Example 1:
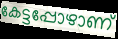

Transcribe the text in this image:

കേട്ടപ്പോഴാണ്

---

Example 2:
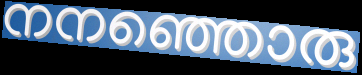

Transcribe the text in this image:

നനഞ്ഞൊരു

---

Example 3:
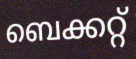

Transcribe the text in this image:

ബെക്കറ്റ്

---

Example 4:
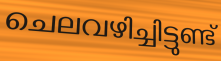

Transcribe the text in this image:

ചെലവഴിച്ചിട്ടുണ്ട്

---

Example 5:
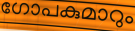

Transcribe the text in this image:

ഗോപകുമാറും